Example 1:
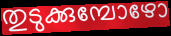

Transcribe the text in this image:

തുടുക്കുമ്പോഴോ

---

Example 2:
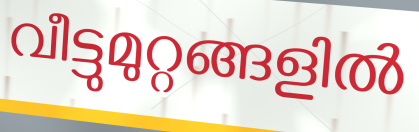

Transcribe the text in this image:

വീട്ടുമുറ്റങ്ങളിൽ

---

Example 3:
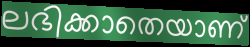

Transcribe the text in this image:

ലഭിക്കാതെയാണ്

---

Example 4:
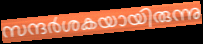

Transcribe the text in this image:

സന്ദർശകയായിരുന്നു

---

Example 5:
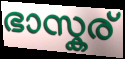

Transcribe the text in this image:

ഭാസ്കര്